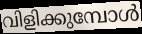
വിളിക്കുമ്പോൾ